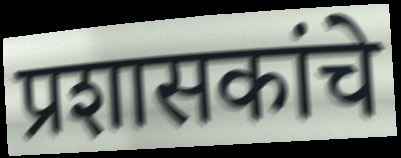
प्रशासकांचे